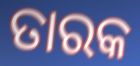
ତାରକ